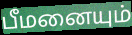
பீமனையும்